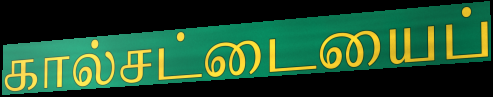
கால்சட்டையைப்